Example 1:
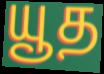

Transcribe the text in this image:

யூத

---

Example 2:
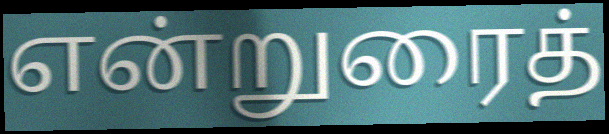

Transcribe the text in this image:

என்றுரைத்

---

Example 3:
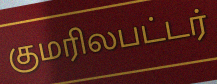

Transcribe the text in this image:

குமரிலபட்டர்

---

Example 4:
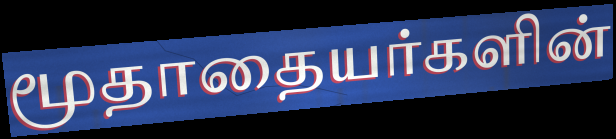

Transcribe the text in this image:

மூதாதையர்களின்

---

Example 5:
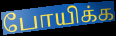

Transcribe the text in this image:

போயிக்க